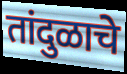
तांदुळाचे